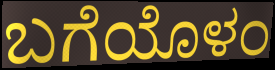
ಬಗೆಯೊಳಂ